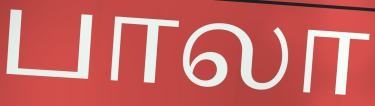
பாலா